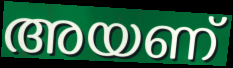
അയണ്